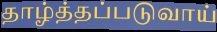
தாழ்த்தப்படுவாய்